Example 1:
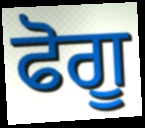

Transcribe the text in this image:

ਫੋਗੂ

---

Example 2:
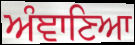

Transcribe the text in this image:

ਅੰਞਾਣਿਆ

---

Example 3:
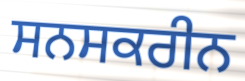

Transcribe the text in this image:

ਸਨਸਕਰੀਨ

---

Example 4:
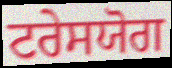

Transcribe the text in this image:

ਟਰੇਸਯੋਗ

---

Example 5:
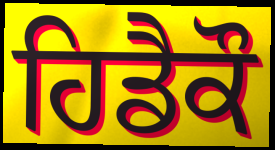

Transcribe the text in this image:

ਹਿਡੈਕੌ